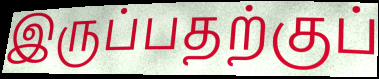
இருப்பதற்குப்